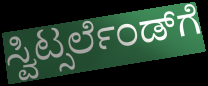
ಸ್ವಿಟ್ಸರ್ಲೆಂಡ್‌ಗೆ